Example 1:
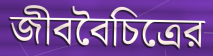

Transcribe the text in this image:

জীববৈচিত্রের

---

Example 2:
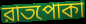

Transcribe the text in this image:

রাতপোকা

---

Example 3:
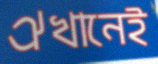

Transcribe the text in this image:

ঐখানেই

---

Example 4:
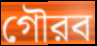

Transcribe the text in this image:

গৌরব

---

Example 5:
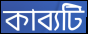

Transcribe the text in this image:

কাব্যটি